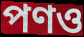
পণও